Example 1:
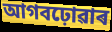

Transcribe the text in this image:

আগবঢ়োৱাৰ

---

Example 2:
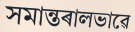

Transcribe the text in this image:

সমান্তৰালভাৱে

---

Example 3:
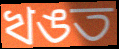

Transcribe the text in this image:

খঙত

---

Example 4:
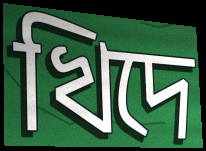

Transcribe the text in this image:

খিদে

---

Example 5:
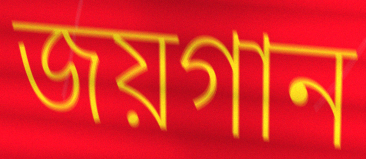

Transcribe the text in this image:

জয়গান